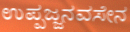
ಉಪ್ಪಜ್ಜನವಸೇನ